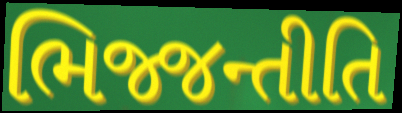
ભિજ્જન્તીતિ